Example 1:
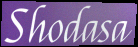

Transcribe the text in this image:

Shodasa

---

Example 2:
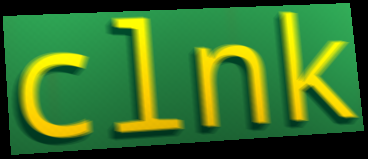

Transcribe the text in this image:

clnk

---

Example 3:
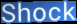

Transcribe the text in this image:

Shock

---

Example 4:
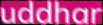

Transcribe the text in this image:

uddhar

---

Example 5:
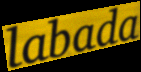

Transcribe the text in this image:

labada